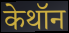
केथॉन